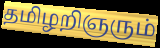
தமிழறிஞரும்